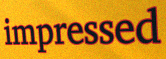
impressed